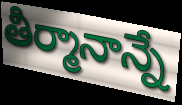
తీర్మానాన్నే